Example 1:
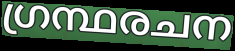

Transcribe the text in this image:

ഗ്രന്ഥരചന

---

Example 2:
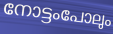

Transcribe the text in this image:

നോട്ടംപോലും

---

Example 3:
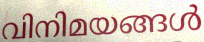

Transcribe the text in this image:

വിനിമയങ്ങൾ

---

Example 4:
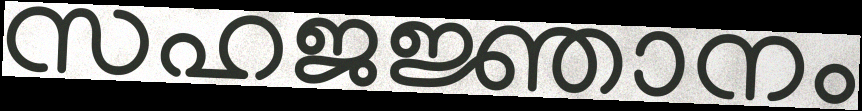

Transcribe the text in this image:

സഹജജ്ഞാനം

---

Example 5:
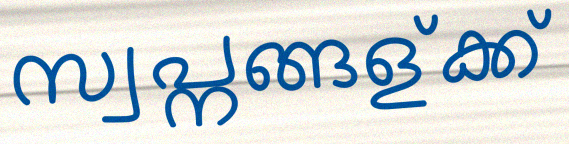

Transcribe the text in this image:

സ്വപ്നങ്ങള്ക്ക്